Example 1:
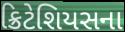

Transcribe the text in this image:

ક્રિટેશિયસના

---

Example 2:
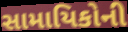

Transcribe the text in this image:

સામાયિકોની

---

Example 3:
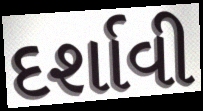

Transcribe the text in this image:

દર્શાવી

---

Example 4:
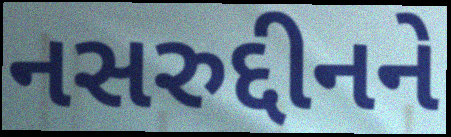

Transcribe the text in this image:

નસરુદ્દીનને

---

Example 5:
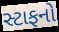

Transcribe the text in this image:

સ્ટાફનો